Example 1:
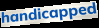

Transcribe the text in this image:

handicapped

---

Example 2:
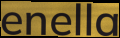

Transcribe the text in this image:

enella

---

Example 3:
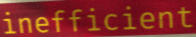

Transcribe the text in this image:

inefficient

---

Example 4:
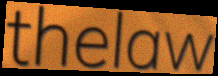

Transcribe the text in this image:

thelaw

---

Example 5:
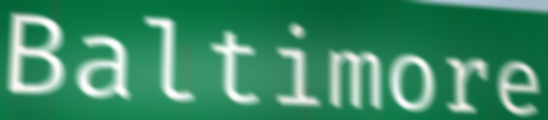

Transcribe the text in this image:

Baltimore